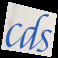
cds